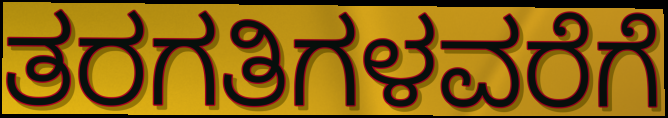
ತರಗತಿಗಳವರೆಗೆ